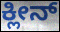
ಕ್ಲೀನ್